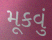
મૂકવું